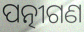
ପତ୍ନୀଗଣ